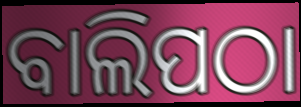
ବାଲିପଠା